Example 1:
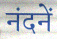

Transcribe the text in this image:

नंदनें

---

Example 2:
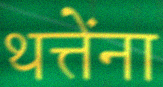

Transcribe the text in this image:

थत्तेंना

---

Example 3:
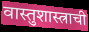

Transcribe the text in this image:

वास्तुशास्त्राची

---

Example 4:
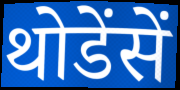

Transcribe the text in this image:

थोडेंसें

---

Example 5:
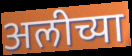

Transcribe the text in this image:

अलीच्या